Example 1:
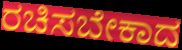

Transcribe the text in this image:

ರಚಿಸಬೇಕಾದ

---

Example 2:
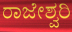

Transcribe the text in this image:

ರಾಜೇಶ್ವರಿ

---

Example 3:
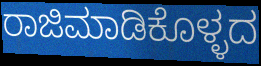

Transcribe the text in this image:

ರಾಜಿಮಾಡಿಕೊಳ್ಳದ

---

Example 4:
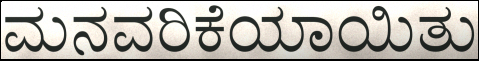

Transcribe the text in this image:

ಮನವರಿಕೆಯಾಯಿತು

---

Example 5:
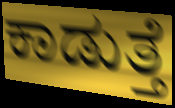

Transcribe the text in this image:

ಕಾಡುತ್ತೆ